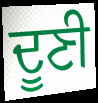
ਦੂਣੀ